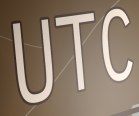
UTC